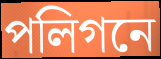
পলিগনে